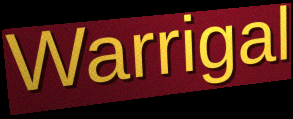
Warrigal